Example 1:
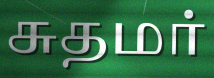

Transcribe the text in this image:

சுதமர்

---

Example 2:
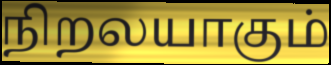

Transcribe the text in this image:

நிறலயாகும்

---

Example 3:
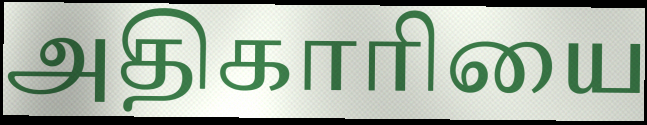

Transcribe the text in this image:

அதிகாரியை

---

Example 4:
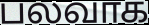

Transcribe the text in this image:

பலவாக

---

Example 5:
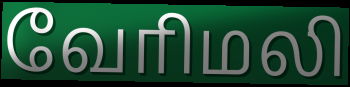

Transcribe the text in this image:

வேரிமலி